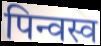
पिन्वस्व